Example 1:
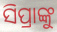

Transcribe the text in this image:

ସିପ୍ରାଙ୍କୁ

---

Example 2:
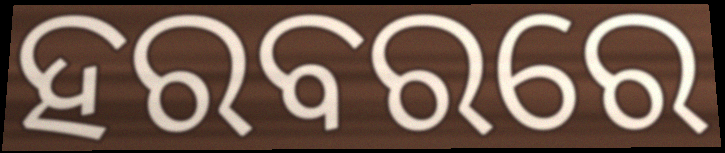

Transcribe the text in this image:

ହରବରରେ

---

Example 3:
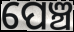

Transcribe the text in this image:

ପେଞ୍ଚ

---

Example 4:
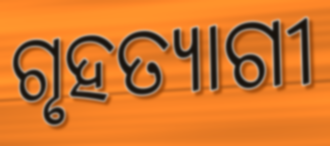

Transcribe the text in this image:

ଗୃହତ୍ୟାଗୀ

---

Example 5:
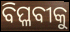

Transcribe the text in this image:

ବିପ୍ଳବୀକୁ